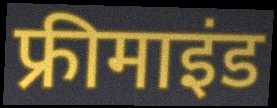
फ्रीमाइंड